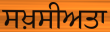
ਸਖ਼ਸੀਅਤਾ